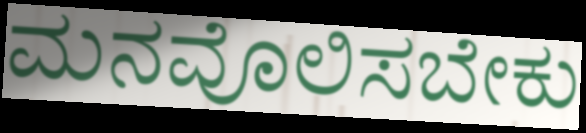
ಮನವೊಲಿಸಬೇಕು